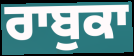
ਰਾਬੁਕਾ